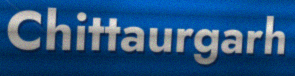
Chittaurgarh